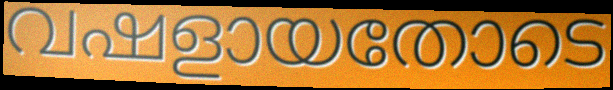
വഷളായതോടെ